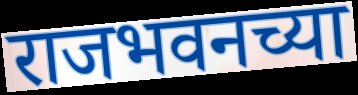
राजभवनच्या